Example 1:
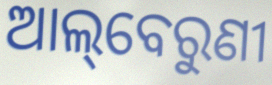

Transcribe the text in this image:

ଆଲ୍‌ବେରୁଣୀ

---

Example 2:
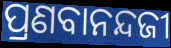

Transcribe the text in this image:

ପ୍ରଣବାନନ୍ଦଜୀ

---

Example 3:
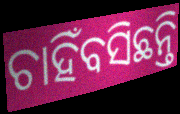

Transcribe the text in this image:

ଚାହିଁବସିଛନ୍ତି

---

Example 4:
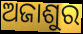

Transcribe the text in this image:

ଅଜାଶୁର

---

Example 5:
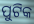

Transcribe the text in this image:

ପୁଟିକ